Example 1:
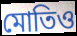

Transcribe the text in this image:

মোতিও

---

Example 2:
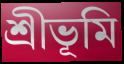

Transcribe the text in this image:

শ্রীভূমি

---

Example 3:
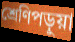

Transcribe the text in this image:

শ্রেণিপড়ুয়া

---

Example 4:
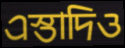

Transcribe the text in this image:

এস্তাদিও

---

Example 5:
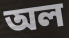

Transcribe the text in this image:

অল